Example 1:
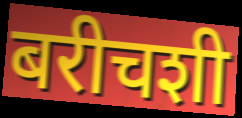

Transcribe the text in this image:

बरीचशी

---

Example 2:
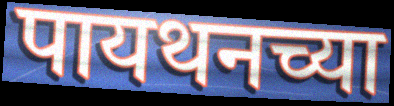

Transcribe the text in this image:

पायथनच्या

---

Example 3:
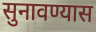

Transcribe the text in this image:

सुनावण्यास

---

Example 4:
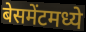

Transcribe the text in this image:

बेसमेंटमध्ये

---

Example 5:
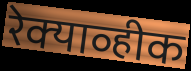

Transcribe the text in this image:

रेक्याव्हीक